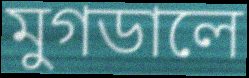
মুগডালে